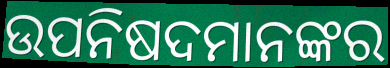
ଉପନିଷଦମାନଙ୍କର